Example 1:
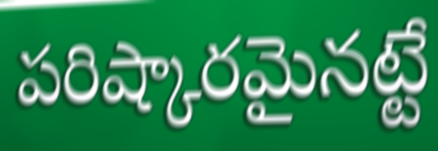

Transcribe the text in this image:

పరిష్కారమైనట్టే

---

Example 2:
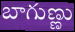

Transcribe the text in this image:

బాగుణ్ణు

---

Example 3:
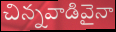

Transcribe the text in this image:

చిన్నవాడివైనా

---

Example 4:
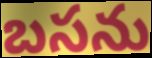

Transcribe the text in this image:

బసను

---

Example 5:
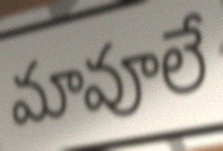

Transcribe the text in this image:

మావూలే